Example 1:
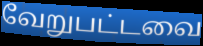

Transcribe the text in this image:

வேறுபட்டவை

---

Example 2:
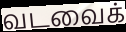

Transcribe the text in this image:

வடவைக்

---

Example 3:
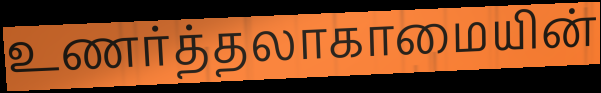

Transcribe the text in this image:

உணர்த்தலாகாமையின்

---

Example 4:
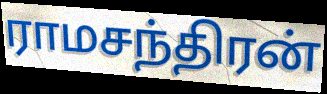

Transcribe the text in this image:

ராமசந்திரன்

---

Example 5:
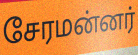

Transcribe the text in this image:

சேரமன்னர்